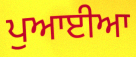
ਪੁਆਈਆ